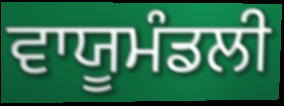
ਵਾਯੂਮੰਡਲੀ